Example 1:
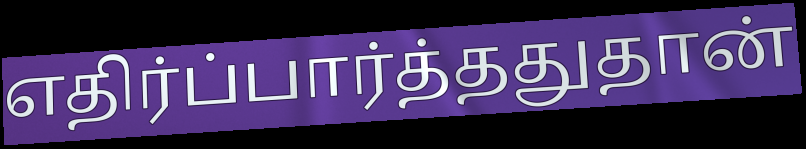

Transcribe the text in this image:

எதிர்ப்பார்த்ததுதான்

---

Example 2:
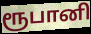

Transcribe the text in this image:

ரூபானி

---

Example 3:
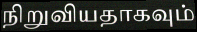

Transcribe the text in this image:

நிறுவியதாகவும்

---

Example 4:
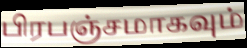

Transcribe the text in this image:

பிரபஞ்சமாகவும்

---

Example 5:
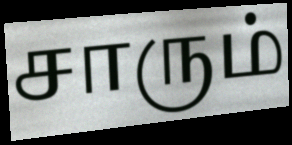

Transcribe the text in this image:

சாரும்